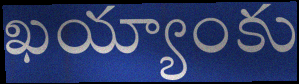
ఖయ్యాంకు